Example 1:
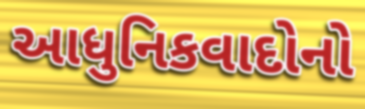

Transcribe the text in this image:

આધુનિકવાદોનો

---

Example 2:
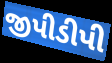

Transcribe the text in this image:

જીપીડીપી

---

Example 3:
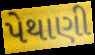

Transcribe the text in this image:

પેથાણી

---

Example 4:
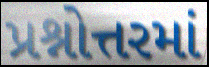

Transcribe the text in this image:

પ્રશ્નોત્તરમાં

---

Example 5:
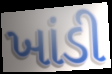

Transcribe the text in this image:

ખાંડી